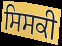
ਸਿਸਕੀ